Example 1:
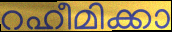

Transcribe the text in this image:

റഹീമിക്കാ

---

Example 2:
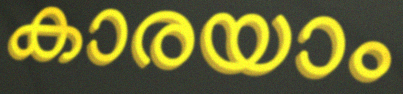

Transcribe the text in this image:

കാരയാം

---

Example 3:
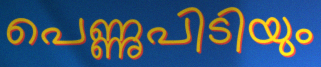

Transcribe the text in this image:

പെണ്ണുപിടിയും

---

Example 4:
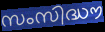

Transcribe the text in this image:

സംസിദ്ധൗ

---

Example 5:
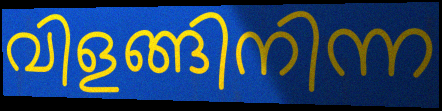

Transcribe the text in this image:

വിളങ്ങിനിന്ന